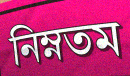
নিম্নতম